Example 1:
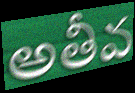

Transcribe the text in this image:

అతీవ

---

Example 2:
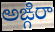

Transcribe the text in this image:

అఙ్గిరా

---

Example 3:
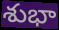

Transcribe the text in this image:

శుభా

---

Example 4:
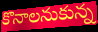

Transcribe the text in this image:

కొనాలనుకున్న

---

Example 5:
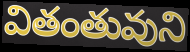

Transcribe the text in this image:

వితంతువుని